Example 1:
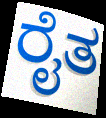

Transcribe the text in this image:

ರೈತ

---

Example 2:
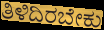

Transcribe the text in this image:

ತಿಳಿದಿರಬೇಕು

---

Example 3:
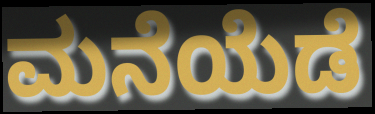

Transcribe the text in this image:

ಮನೆಯೆಡೆ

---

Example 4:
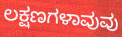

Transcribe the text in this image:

ಲಕ್ಷಣಗಳಾವುವು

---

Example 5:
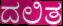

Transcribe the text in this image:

ದಲಿತ